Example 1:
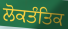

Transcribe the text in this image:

ਲੋਕਤੰਤਿਕ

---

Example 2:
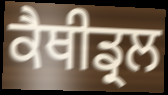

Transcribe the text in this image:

ਕੈਥੀਡ੍ਰਲ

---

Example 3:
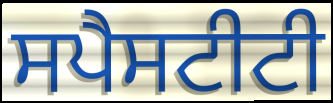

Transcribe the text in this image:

ਸਪੈਸਟੀਟੀ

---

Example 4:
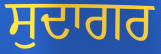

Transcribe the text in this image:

ਸੁਦਾਗਰ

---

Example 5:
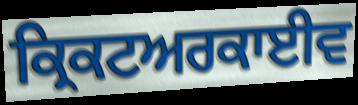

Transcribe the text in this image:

ਕ੍ਰਿਕਟਅਰਕਾਈਵ